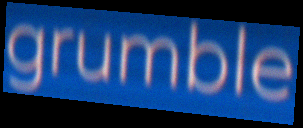
grumble